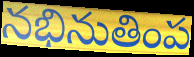
నభినుతింప